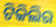
ଟିକିଲିର